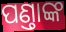
ପଣ୍ତାଙ୍କ